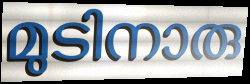
മുടിനാരു